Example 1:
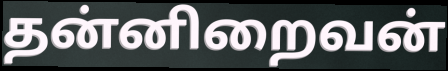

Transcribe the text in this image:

தன்னிறைவன்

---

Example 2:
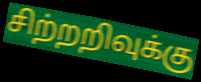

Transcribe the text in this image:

சிற்றறிவுக்கு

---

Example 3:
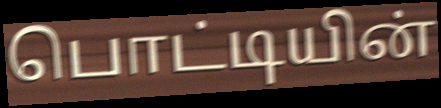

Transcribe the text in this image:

பொட்டியின்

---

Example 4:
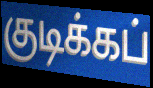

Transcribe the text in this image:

குடிக்கப்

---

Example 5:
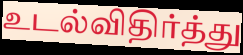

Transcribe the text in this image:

உடல்விதிர்த்து